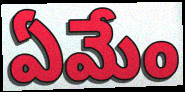
ఏమేం